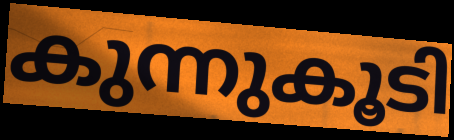
കുന്നുകൂടി